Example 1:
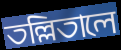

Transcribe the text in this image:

তল্লিতালে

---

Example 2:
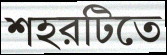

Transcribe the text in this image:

শহরটিতে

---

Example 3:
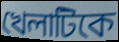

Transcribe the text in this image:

খেলাটিকে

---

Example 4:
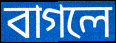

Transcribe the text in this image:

বাগলে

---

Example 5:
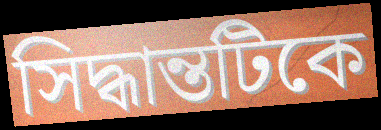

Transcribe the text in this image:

সিদ্ধান্তটিকে